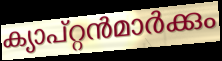
ക്യാപ്റ്റൻമാർക്കും